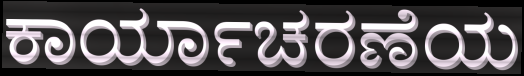
ಕಾರ್ಯಾಚರಣೆಯ